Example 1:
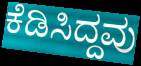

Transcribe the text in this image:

ಕೆಡಿಸಿದ್ದವು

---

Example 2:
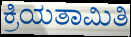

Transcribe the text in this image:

ಕ್ರಿಯತಾಮಿತಿ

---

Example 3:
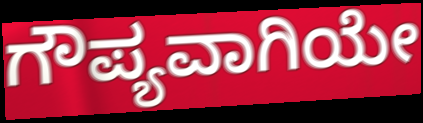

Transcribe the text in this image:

ಗೌಪ್ಯವಾಗಿಯೇ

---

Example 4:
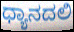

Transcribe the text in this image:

ಧ್ಯಾನದಲಿ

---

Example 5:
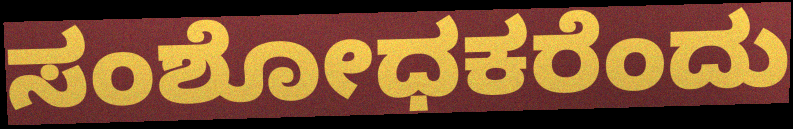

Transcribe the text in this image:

ಸಂಶೋಧಕರೆಂದು